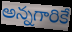
అన్నగారికే